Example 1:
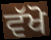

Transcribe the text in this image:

ਵੱਖੋ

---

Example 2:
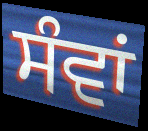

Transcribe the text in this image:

ਸੰਵਾਂ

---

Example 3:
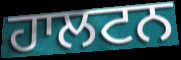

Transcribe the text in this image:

ਹਾਲਟਨ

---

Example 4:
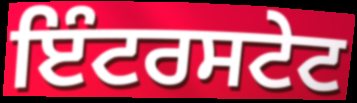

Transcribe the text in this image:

ਇੰਟਰਸਟੇਟ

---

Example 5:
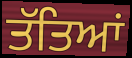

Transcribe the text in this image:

ਤੱਤਿਆਂ